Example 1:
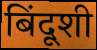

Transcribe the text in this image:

बिंदूशी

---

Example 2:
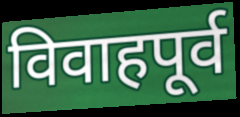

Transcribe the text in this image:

विवाहपूर्व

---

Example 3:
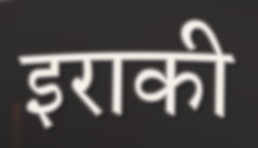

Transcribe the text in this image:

इराकी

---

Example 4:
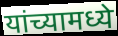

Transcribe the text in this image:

यांच्यामध्ये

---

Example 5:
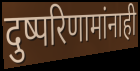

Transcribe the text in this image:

दुष्परिणामांनाही